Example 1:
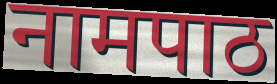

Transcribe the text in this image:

नामपाठ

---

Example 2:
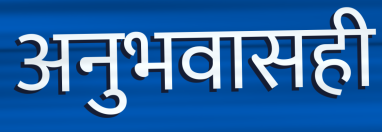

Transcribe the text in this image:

अनुभवासही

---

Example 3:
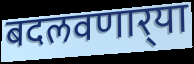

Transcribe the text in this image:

बदलवणार्‍या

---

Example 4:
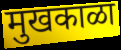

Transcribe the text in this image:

मुखकाळा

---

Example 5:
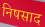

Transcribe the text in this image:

निषसाद